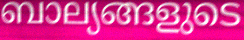
ബാല്യങ്ങളുടെ